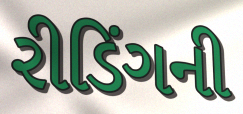
રીડિંગની